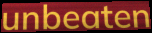
unbeaten